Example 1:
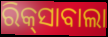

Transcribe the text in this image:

ରିକ୍‌ସାବାଲା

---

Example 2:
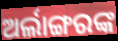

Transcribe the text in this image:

ଅର୍ଲାଙ୍ଗରଙ୍କ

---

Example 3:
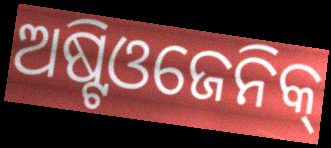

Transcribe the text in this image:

ଅଷ୍ଟିଓଜେନିକ୍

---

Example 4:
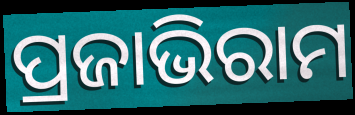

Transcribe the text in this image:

ପ୍ରଜାଭିରାମ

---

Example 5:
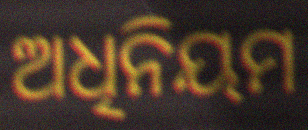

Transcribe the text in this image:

ଅଧିନିୟମ